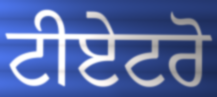
ਟੀਏਟਰੋ